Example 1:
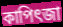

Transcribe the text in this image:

কাপিৎজা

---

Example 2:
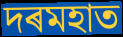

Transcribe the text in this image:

দৰমহাত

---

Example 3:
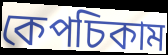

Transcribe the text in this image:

কেপচিকাম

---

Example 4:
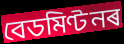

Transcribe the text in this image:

বেডমিণ্টনৰ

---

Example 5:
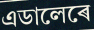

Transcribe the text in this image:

এডালেৰে